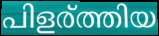
പിളര്ത്തിയ